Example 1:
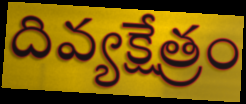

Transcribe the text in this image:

దివ్యక్షేత్రం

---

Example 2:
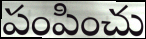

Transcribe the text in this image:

పంపించు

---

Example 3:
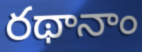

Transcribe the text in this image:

రథానాం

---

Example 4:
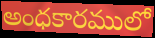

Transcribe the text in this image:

అంధకారములో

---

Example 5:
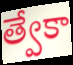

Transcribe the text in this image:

త్వేకా